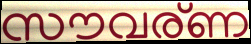
സൗവര്ണ